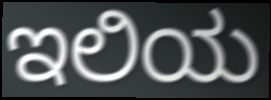
ಇಲಿಯ